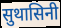
सुथासिनी